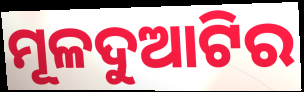
ମୂଳଦୁଆଟିର